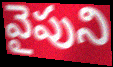
వైపుని